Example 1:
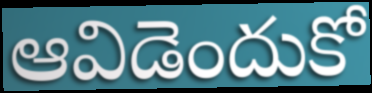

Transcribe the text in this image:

ఆవిడెందుకో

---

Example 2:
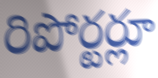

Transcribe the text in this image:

రిపోర్టర్లూ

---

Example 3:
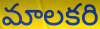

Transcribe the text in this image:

మాలకరి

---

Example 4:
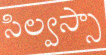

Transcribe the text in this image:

సిల్వస్సా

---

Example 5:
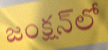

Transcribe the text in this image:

జంక్షన్‌లో